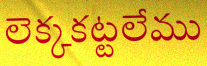
లెక్కకట్టలేము